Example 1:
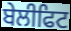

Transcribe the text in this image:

ਬੇਲੀਫਿਟ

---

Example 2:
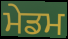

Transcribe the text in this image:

ਮੇਡਮ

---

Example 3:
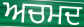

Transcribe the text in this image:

ਅਚਮਦ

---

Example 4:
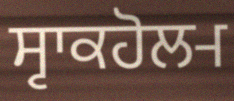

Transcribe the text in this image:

ਸ੍ਟਾਕਹੋਲ੍ਮ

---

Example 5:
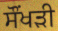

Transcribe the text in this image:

ਸੌਂਖੜੀ